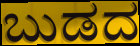
ಬುಡದ